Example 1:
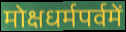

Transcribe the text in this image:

मोक्षधर्मपर्वमें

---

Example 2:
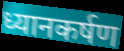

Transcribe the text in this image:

ध्यानकर्षण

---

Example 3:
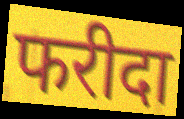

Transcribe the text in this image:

फरीदा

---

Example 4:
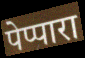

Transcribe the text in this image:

पेप्पारा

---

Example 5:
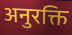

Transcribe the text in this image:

अनुरक्ति